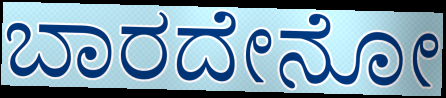
ಬಾರದೇನೋ